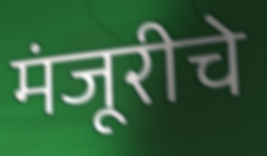
मंजूरीचे